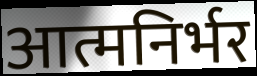
आत्मनिर्भर